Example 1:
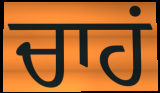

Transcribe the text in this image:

ਚਾਹਂ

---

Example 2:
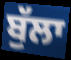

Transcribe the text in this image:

ਬੁੱਲਾ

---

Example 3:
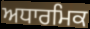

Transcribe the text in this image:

ਅਧਾਰਮਿਕ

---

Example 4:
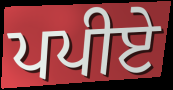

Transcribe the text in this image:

ਪਪੀਏ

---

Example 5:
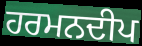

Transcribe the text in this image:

ਹਰਮਨਦੀਪ